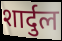
शार्दुल